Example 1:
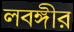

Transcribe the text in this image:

লবঙ্গীর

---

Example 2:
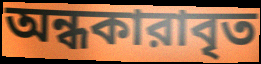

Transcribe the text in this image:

অন্ধকারাবৃত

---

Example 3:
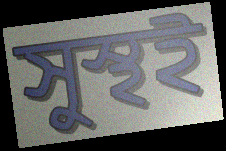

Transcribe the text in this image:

সুস্থই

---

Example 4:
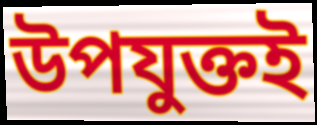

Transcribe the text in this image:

উপযুক্তই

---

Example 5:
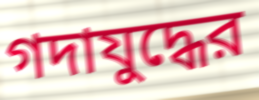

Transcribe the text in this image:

গদাযুদ্ধের